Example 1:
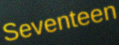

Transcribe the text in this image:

Seventeen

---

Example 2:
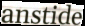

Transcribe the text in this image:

anstide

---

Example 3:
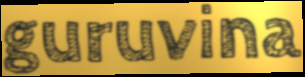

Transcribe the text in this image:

guruvina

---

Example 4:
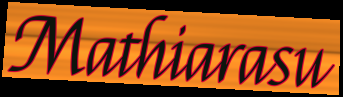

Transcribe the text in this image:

Mathiarasu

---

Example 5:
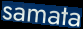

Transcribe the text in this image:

samata